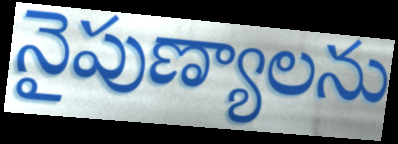
నైపుణ్యాలను